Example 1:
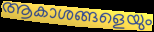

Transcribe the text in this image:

ആകാശങ്ങളെയും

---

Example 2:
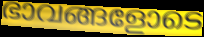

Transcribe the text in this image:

ഭാവങ്ങളോടെ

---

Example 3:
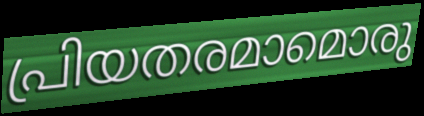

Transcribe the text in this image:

പ്രിയതരമാമൊരു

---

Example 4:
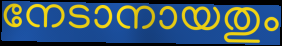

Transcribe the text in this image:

നേടാനായതും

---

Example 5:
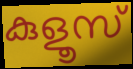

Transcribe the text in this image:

കുളൂസ്